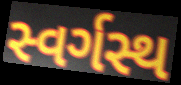
સ્વર્ગસ્થ